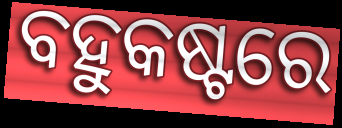
ବହୁକଷ୍ଟରେ